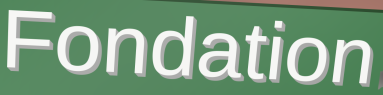
Fondation